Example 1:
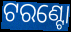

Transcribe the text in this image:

ଟରଣ୍ଟୋ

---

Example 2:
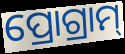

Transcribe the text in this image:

ପ୍ରୋଗ୍ରାମ୍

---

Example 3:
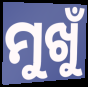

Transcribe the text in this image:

ମୁଖୁଁ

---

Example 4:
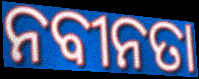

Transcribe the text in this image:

ନବୀନତା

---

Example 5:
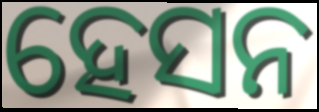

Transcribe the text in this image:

ହେସନ